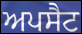
ਅਪਸੈਟ